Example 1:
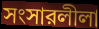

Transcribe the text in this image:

সংসারলীলা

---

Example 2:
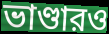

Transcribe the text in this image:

ভাণ্ডারও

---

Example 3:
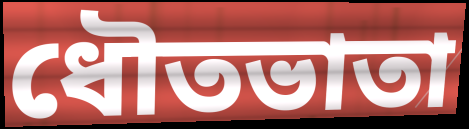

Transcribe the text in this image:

ধৌতভাতা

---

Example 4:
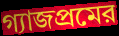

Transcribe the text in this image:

গ্যাজপ্রমের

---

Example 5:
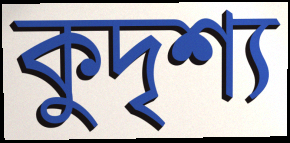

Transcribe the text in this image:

কুদৃশ্য